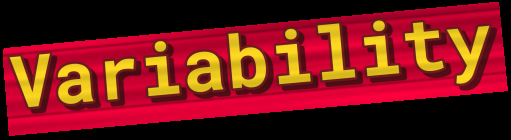
Variability